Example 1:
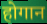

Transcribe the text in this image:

होगान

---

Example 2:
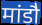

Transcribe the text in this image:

मांडौ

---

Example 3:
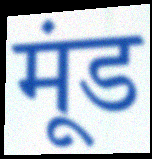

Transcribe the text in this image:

मूंड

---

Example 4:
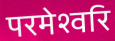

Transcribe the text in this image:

परमेश्वरि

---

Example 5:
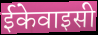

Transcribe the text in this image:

ईकेवाइसी